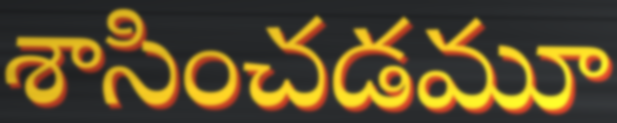
శాసించడమూ